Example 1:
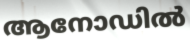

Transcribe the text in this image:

ആനോഡിൽ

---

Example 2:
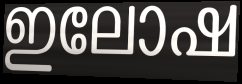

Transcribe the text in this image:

ഇലോഷ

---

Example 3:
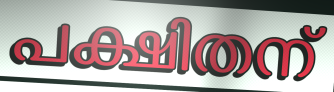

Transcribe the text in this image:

പക്ഷിതന്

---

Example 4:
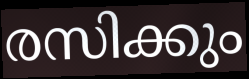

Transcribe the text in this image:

രസിക്കും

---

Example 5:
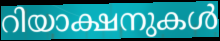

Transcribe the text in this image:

റിയാക്ഷനുകൾ